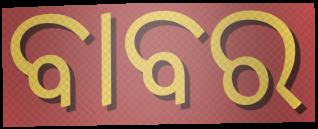
ବାବର